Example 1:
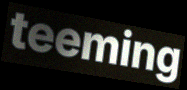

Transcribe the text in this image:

teeming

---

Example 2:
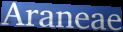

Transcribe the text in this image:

Araneae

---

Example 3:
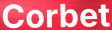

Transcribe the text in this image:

Corbet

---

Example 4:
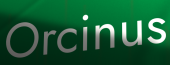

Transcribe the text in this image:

Orcinus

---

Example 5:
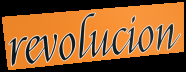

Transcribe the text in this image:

revolucion